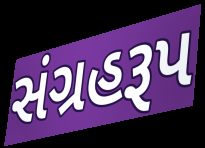
સંગ્રહરૂપ